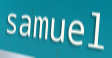
samuel